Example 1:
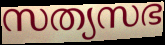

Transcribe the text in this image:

സത്യസഭ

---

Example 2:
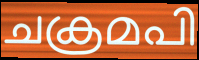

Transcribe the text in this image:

ചക്രമപി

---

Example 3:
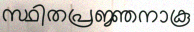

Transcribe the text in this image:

സ്ഥിതപ്രജ്ഞനാകൂ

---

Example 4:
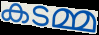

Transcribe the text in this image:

കടമ്മ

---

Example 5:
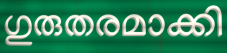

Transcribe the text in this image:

ഗുരുതരമാക്കി